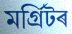
মৰ্গ্ৰিটৰ